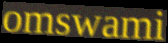
omswami